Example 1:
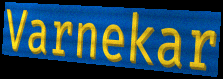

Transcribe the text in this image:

Varnekar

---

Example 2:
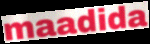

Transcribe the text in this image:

maadida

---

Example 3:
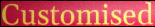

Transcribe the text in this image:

Customised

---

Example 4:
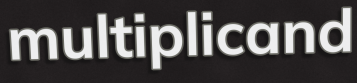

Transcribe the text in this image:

multiplicand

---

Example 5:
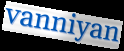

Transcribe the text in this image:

vanniyan